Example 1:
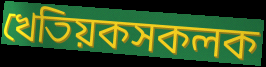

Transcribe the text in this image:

খেতিয়কসকলক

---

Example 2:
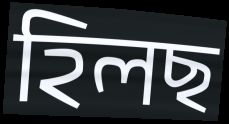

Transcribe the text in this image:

হিলছ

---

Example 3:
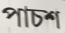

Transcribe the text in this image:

পাচশ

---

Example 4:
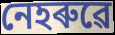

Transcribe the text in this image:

নেহৰুৱে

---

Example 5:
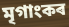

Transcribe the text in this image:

মৃগাংকৰ